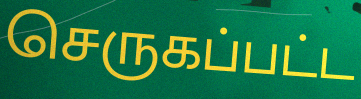
செருகப்பட்ட